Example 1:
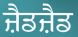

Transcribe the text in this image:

ਜ਼ੈਡਜ਼ੈਡ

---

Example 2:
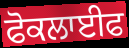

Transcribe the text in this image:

ਫੋਕਲਾਈਫ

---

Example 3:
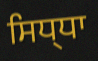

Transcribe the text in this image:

ਸਿਧ੍ਧਾ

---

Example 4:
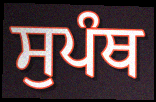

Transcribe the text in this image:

ਸੁਪੰਥ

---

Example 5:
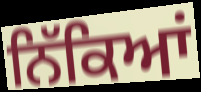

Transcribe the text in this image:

ਨਿੱਕਿਆਂ